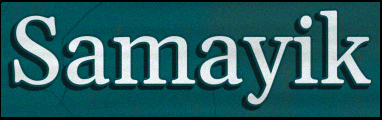
Samayik